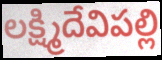
లక్ష్మిదేవిపల్లి